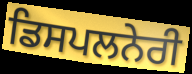
ਡਿਸਪਲਨੇਰੀ